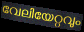
വേലിയേറ്റവും